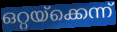
ഒറ്റയ്‌ക്കെന്ന്